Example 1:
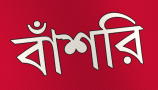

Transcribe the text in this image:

বাঁশরি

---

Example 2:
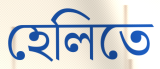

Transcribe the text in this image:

হেলিতে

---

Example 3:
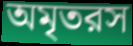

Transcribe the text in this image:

অমৃতরস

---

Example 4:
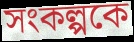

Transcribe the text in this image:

সংকল্পকে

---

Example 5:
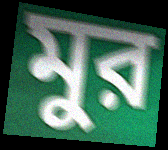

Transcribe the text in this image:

মুর